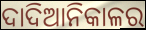
ଦାଦିଆନିକାଳର